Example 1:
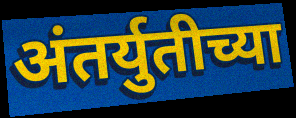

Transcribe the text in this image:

अंतर्युतीच्या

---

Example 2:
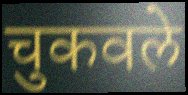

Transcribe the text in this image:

चुकवले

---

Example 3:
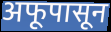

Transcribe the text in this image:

अफूपासून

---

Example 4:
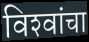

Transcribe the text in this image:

विश्वांचा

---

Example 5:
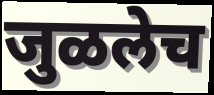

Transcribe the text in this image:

जुळलेच